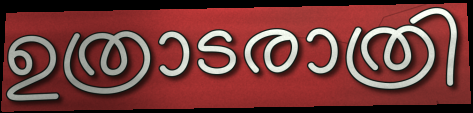
ഉത്രാടരാത്രി